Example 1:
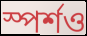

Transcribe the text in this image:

স্পর্শও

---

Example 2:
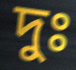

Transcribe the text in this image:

দুঃ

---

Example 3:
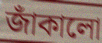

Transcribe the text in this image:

জাঁকালো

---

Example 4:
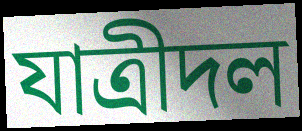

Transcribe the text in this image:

যাত্রীদল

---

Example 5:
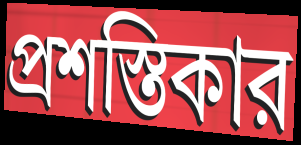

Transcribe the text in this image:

প্রশস্তিকার